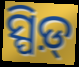
ସ୍ପିଡ଼୍